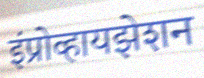
इंप्रोव्हायझेशन